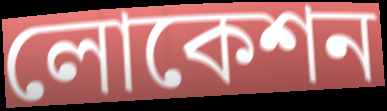
লোকেশন